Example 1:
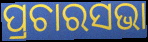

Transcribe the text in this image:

ପ୍ରଚାରସଭା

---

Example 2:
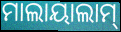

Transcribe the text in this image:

ମାଲାୟାଲାମ୍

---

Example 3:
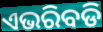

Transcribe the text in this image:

ଏଭରିବଡି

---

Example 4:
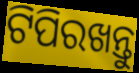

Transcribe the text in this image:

ଟିପିରଖନ୍ତୁ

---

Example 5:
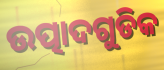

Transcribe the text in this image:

ଉତ୍ପାଦଗୁଡିକ